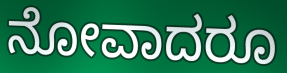
ನೋವಾದರೂ